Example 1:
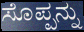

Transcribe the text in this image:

ಸೊಪ್ಪನ್ನು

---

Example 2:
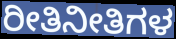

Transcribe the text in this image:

ರೀತಿನೀತಿಗಳ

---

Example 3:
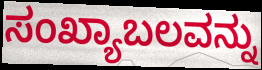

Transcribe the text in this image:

ಸಂಖ್ಯಾಬಲವನ್ನು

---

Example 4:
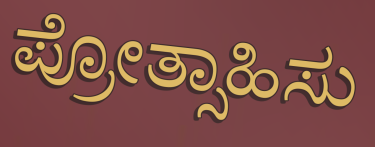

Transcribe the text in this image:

ಪ್ರೋತ್ಸಾಹಿಸು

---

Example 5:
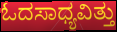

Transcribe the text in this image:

ಓದಸಾಧ್ಯವಿತ್ತು